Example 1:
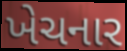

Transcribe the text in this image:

ખેચનાર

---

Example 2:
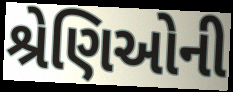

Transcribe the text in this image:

શ્રેણિઓની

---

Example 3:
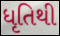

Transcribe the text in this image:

ધૃતિથી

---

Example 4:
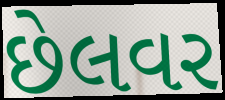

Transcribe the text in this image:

છેલવર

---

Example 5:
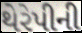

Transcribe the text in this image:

થેરેપીની